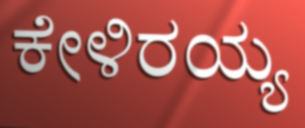
ಕೇಳಿರಯ್ಯ